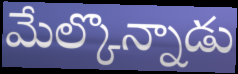
మేల్కొన్నాడు